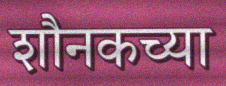
शौनकच्या